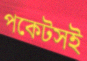
পকেটসই